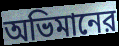
অভিমানের